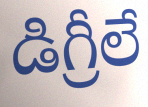
డిగ్రీలే